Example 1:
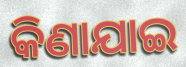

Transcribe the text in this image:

କିଣାଯାଇ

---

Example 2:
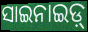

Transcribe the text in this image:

ସାଇନାଇଡ଼୍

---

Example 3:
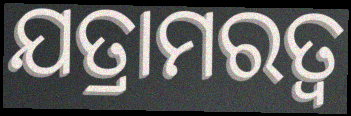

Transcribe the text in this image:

ଯତ୍ରାମରତ୍ଵ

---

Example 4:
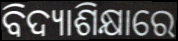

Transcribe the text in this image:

ବିଦ୍ୟାଶିକ୍ଷାରେ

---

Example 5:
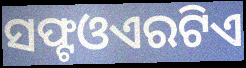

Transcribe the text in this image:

ସଫ୍ଟଓଏରଟିଏ